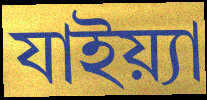
যাইয়্যা